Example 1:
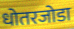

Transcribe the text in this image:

धोतरजोडा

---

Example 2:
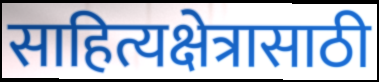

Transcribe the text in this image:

साहित्यक्षेत्रासाठी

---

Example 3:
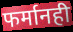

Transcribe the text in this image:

फर्मानही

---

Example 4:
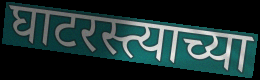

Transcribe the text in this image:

घाटरस्त्याच्या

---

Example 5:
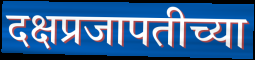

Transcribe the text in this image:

दक्षप्रजापतीच्या